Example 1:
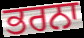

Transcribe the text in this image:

ਭਰਨਾ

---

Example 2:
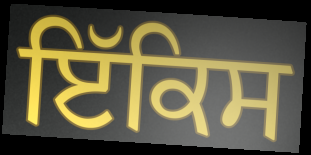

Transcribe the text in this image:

ਇੱਕਿਸ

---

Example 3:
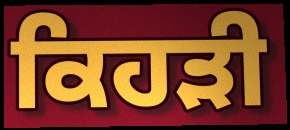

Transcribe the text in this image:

ਕਿਹੜੀ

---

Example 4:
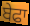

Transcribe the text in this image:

ਬੇਫਾ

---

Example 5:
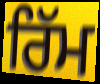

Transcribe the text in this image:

ਰਿੱਮ